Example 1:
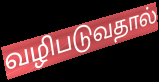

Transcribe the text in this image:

வழிபடுவதால்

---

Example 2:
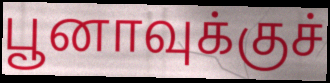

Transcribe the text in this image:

பூனாவுக்குச்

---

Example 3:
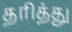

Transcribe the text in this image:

தரித்து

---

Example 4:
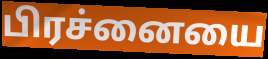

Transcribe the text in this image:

பிரச்னையை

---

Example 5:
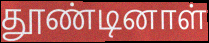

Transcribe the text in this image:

தூண்டினாள்